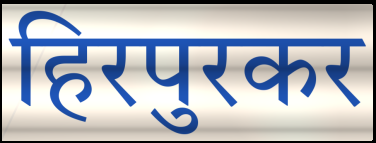
हिरपुरकर